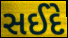
સઈદે